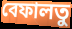
বেফালতু